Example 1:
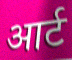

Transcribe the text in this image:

आर्ट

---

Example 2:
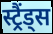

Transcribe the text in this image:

स्ट्रैंड्स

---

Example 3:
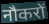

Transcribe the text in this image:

नौकरों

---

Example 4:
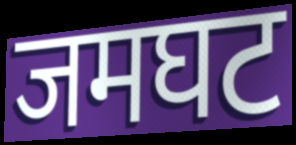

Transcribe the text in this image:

जमघट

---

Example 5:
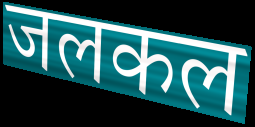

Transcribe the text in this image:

जलकल